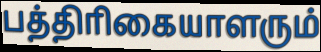
பத்திரிகையாளரும்